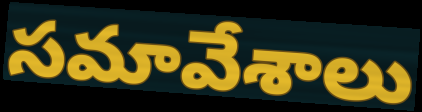
సమావేశాలు